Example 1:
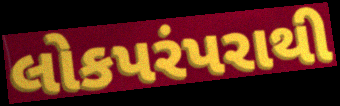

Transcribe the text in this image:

લોકપરંપરાથી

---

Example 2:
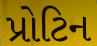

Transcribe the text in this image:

પ્રોટિન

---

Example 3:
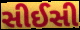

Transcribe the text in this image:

સીઈસી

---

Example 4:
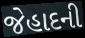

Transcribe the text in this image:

જેહાદની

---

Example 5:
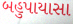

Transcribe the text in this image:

બહુપાયાસા